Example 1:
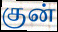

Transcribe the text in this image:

குன்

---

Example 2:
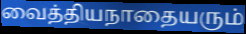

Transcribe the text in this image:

வைத்தியநாதையரும்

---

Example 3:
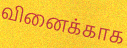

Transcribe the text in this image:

வினைக்காக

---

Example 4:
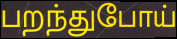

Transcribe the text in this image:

பறந்துபோய்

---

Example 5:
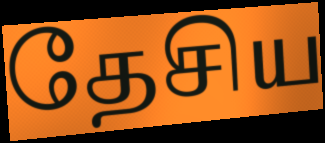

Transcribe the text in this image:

தேசிய